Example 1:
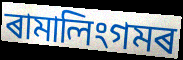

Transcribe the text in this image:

ৰামালিংগমৰ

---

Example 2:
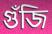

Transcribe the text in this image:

গুঁজি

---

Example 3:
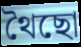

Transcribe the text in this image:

থৈছো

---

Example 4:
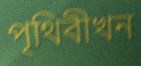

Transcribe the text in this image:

পৃথিবীখন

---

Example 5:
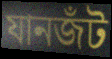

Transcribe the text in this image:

যানজঁট